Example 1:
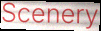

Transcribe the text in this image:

Scenery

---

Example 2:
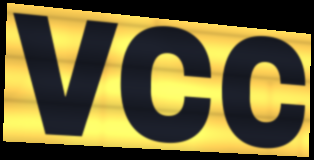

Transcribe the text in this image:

VCC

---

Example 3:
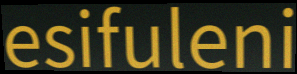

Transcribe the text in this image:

esifuleni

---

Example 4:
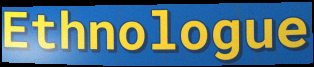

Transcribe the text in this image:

Ethnologue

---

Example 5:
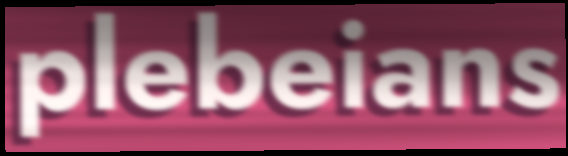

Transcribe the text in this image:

plebeians